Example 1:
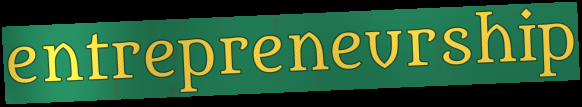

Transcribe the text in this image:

entrepreneurship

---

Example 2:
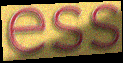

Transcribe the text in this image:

ess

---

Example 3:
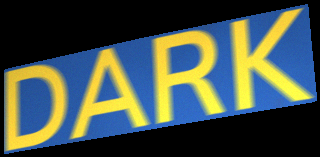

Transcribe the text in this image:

DARK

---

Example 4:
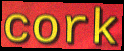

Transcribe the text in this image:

cork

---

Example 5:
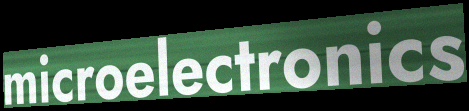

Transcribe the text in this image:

microelectronics